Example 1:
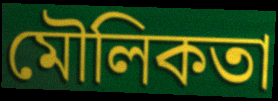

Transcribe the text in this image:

মৌলিকতা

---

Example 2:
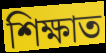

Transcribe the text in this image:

শিক্ষাত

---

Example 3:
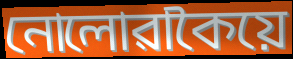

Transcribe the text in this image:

নোলোৱাকৈয়ে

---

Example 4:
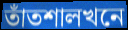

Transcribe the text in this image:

তাঁতশালখনে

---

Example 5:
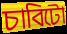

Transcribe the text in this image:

চাবিটো